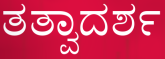
ತತ್ವಾದರ್ಶ